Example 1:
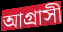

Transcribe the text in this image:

আগ্রাসী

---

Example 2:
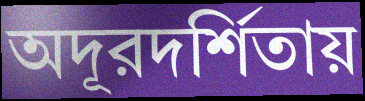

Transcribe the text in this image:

অদূরদর্শিতায়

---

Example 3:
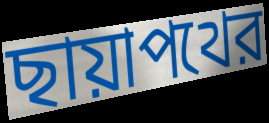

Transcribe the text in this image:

ছায়াপথের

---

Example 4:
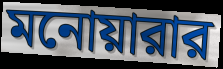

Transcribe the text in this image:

মনোয়ারার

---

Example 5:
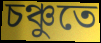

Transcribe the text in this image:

চঞ্চুতে